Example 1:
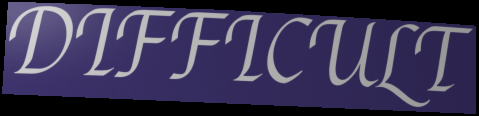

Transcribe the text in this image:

DIFFICULT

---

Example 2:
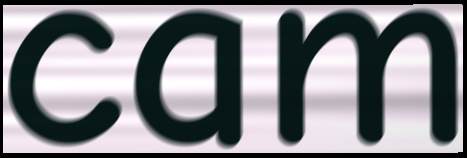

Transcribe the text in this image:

cam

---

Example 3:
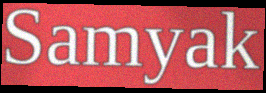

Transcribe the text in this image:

Samyak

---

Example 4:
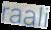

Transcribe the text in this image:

raali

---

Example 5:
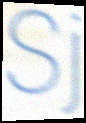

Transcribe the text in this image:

Sj